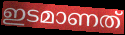
ഇടമാണത്